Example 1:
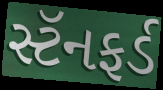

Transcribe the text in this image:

સ્ટૅનફર્ડ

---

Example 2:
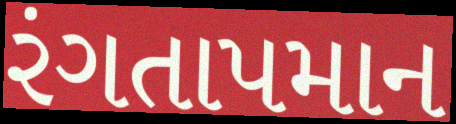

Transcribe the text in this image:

રંગતાપમાન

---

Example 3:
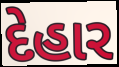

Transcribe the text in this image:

દેહાર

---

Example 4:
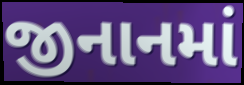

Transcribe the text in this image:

જીનાનમાં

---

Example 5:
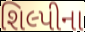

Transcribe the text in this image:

શિલ્પીના